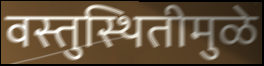
वस्तुस्थितीमुळे